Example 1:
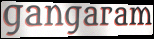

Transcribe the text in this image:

gangaram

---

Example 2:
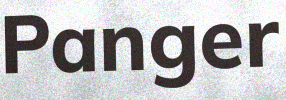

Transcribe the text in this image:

Panger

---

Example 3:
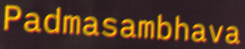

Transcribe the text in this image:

Padmasambhava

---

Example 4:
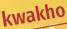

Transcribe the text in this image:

kwakho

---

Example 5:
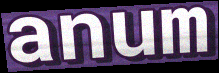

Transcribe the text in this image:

anum